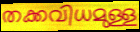
തക്കവിധമുള്ള